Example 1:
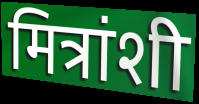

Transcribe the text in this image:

मित्रांशी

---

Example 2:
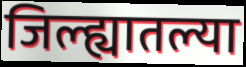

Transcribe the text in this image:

जिल्ह्यातल्या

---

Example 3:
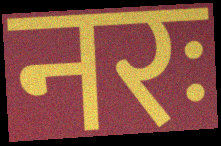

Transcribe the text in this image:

नरः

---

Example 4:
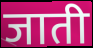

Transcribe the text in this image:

जाती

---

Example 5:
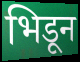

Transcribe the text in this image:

भिडून